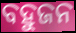
ବହୁଜନ